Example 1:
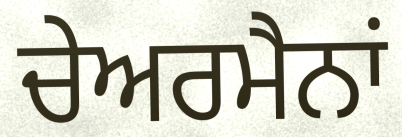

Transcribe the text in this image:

ਚੇਅਰਮੈਨਾਂ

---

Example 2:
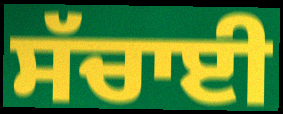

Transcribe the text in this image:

ਸੱਚਾਈ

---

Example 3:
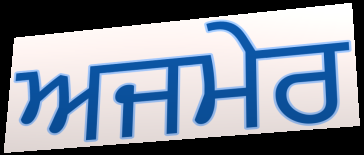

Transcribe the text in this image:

ਅਜਮੇਰ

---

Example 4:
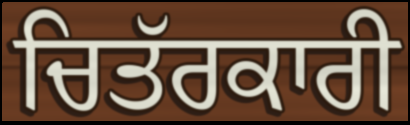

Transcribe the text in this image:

ਚਿਤੱਰਕਾਰੀ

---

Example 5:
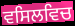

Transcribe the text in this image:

ਵਸਿਲਵਿਚ